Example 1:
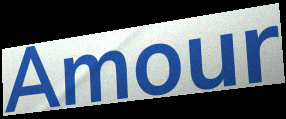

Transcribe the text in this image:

Amour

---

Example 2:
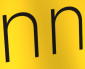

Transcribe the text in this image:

nn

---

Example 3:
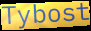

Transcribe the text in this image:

Tybost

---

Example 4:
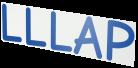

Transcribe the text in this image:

LLLAP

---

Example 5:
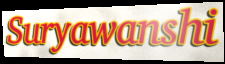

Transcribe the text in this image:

Suryawanshi